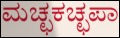
ಮಚ್ಛಕಚ್ಛಪಾ